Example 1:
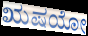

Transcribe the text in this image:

ಋಷಯೋ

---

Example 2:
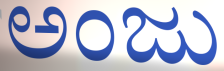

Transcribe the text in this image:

ಅಂಜು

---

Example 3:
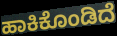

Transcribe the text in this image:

ಹಾಕಿಕೊಂಡಿದೆ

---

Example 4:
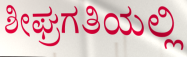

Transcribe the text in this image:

ಶೀಘ್ರಗತಿಯಲ್ಲಿ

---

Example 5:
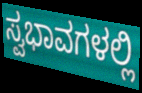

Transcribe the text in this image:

ಸ್ವಭಾವಗಳಲ್ಲಿ